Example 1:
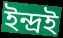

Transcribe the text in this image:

ইন্দ্ৰই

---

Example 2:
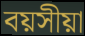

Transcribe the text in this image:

বয়সীয়া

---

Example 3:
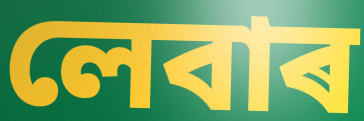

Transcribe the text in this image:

লেবাৰ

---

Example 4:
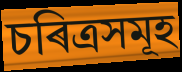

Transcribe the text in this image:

চৰিত্ৰসমূহ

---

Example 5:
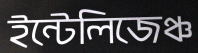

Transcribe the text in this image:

ইন্টেলিজেঞ্চ